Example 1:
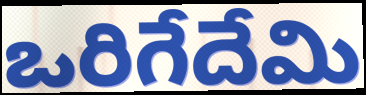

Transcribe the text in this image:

ఒరిగేదేమి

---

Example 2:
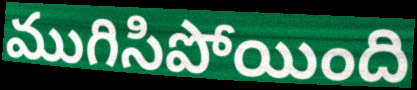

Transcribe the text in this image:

ముగిసిపోయింది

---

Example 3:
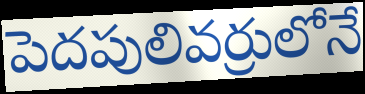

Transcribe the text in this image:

పెదపులివర్రులోనే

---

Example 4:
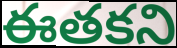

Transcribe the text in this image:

ఈతకని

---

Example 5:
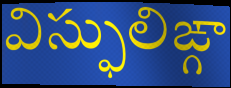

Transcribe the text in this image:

విస్ఫులిఙ్గా